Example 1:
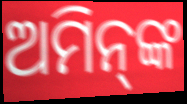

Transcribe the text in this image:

ଅମିନ୍‌ଙ୍କ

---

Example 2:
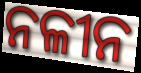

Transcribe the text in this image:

ନଳୀନ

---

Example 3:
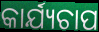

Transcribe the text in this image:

କାର୍ଯ୍ୟଚାପ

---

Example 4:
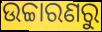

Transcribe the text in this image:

ଉଚ୍ଚାରଣରୁ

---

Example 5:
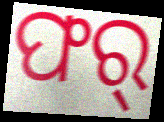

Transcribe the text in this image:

ଫର୍